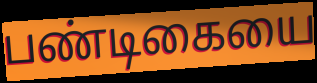
பண்டிகையை